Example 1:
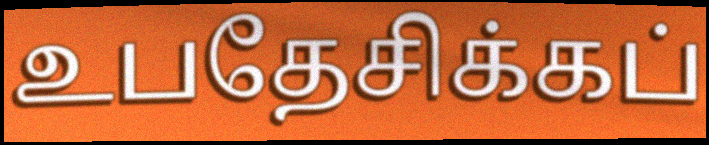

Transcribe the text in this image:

உபதேசிக்கப்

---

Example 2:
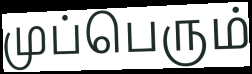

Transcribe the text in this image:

முப்பெரும்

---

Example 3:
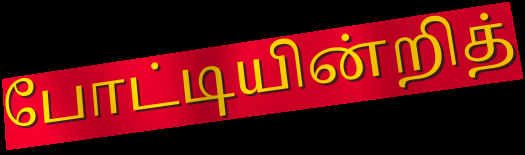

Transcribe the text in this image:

போட்டியின்றித்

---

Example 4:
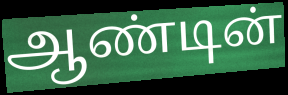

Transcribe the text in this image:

ஆண்டின்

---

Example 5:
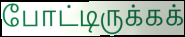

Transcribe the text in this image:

போட்டிருக்கக்